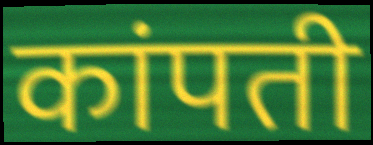
कांपती